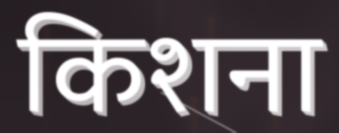
किशना